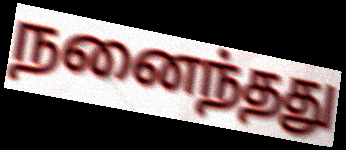
நனைந்தது